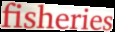
fisheries